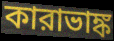
কারাভাঙ্ক